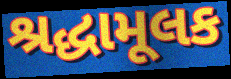
શ્રદ્ધામૂલક